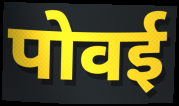
पोवई